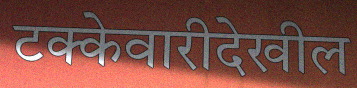
टक्केवारीदेखील